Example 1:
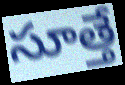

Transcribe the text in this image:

సూత్తే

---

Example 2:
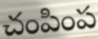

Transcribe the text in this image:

చంపింప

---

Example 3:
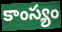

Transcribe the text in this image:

కాంస్యం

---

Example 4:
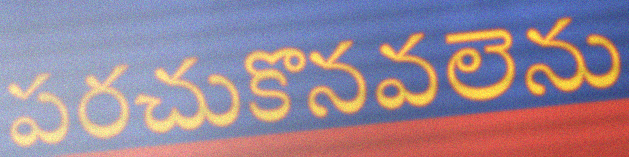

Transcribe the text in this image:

పరచుకొనవలెను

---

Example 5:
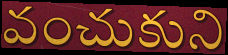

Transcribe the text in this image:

వంచుకుని